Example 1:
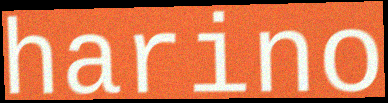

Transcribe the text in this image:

harino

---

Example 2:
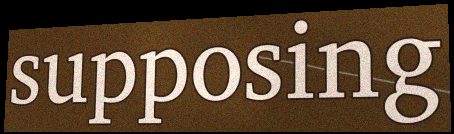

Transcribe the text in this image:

supposing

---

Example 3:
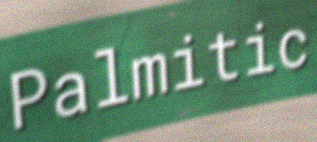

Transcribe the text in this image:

Palmitic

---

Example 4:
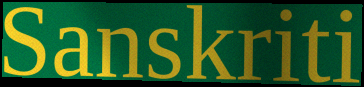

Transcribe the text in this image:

Sanskriti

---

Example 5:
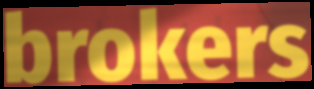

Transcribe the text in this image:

brokers